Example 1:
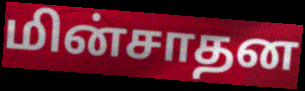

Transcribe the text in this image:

மின்சாதன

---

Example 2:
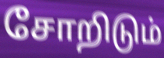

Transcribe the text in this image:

சோறிடும்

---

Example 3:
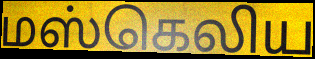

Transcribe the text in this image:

மஸ்கெலிய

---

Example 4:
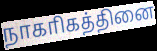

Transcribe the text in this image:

நாகரிகத்தினை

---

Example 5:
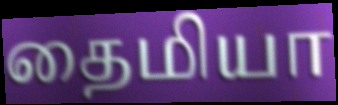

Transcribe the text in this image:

தைமியா